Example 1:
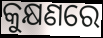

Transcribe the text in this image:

କୁକ୍ଷଣରେ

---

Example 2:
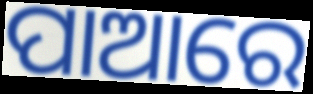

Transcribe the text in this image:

ପାଆରେ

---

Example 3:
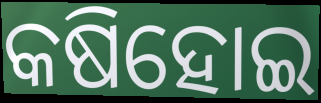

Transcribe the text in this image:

କଷିହୋଇ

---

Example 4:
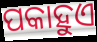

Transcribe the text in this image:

ପକାହୁଏ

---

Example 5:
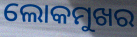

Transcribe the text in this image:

ଲୋକମୁଖର